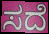
ಸದೆ